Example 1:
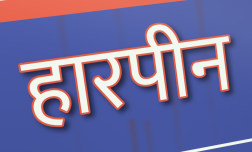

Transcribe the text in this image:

हारपीन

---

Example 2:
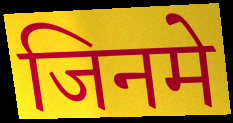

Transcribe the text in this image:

जिनमे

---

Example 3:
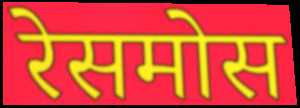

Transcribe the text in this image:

रेसमोस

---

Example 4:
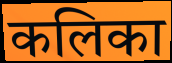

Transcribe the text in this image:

कलिका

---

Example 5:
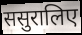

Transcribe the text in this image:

ससुरालिए